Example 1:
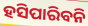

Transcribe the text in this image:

ହସିପାରିବନି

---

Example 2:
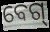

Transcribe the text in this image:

ବେଗ୍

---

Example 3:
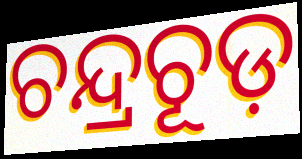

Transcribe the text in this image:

ଚନ୍ଦ୍ରଚୂଡ଼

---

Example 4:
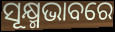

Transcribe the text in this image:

ସୂକ୍ଷ୍ମଭାବରେ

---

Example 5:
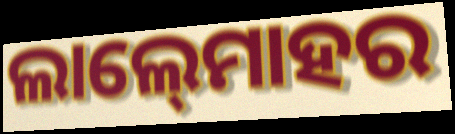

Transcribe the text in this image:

ଲାଲ୍‍ମୋହର